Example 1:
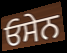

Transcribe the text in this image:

ਓਸੇਨ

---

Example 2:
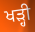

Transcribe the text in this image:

ਖੜ੍ਹੀ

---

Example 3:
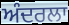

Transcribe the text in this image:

ਅੰਦਰਲਾ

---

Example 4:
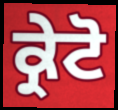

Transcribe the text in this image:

ਕ੍ਰੇਟੋ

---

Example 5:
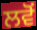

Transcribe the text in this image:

ਲਵੋਂ